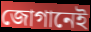
জোগানেই